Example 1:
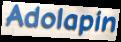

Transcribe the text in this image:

Adolapin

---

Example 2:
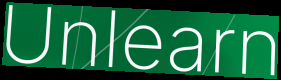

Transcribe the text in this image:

Unlearn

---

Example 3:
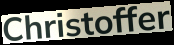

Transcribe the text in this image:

Christoffer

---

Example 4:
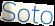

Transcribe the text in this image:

Soto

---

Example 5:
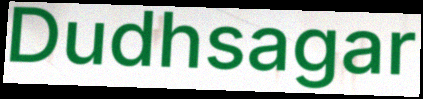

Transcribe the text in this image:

Dudhsagar